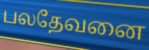
பலதேவனை